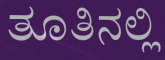
ತೂತಿನಲ್ಲಿ